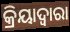
କ୍ରିୟାଦ୍ଵାରା